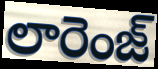
లారెంజ్